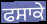
ਫਸਾਕੇ